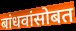
बांधवांसोबत